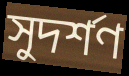
সুদর্শণ